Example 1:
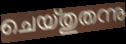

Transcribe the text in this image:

ചെയ്തുതന്നു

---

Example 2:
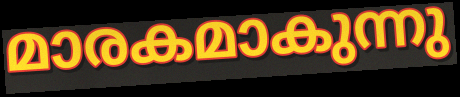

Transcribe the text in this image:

മാരകമാകുന്നു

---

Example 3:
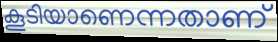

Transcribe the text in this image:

കൂടിയാണെന്നതാണ്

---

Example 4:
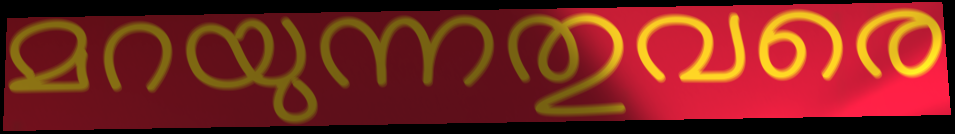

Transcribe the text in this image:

മറയുന്നതുവരെ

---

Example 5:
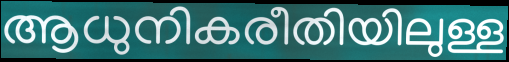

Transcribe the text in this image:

ആധുനികരീതിയിലുള്ള